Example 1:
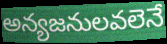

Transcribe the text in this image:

అన్యజనులవలెనే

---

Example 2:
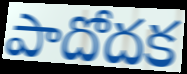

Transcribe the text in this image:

పాదోదక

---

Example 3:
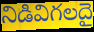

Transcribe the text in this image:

నిడివిగలదై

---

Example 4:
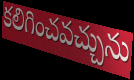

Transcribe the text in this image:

కలిగించవచ్చును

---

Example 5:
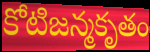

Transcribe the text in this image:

కోటిజన్మకృతం